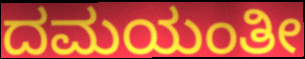
ದಮಯಂತೀ